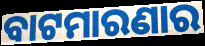
ବାଟମାରଣାର